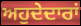
ਅਹੁਦੇਦਾਰਾਂ